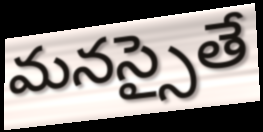
మనస్సైతే